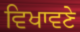
ਵਿਖਾਵਣੇ